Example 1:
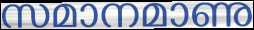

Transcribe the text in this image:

സമാനമാണു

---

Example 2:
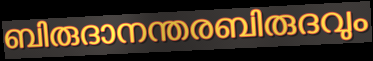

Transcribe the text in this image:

ബിരുദാനന്തരബിരുദവും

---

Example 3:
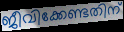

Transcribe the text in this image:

ജീവിക്കേണ്ടതിന്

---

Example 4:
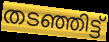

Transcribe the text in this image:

തടഞ്ഞിട്ട്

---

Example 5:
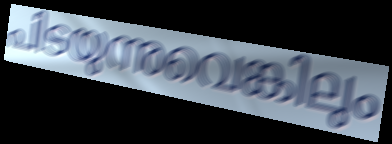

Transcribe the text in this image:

പിടയുന്നുവെങ്കിലും